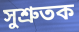
সুশ্ৰুতক